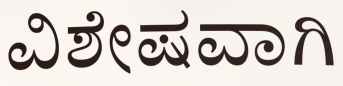
ವಿಶೇಷವಾಗಿ